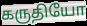
கருதியோ